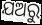
ଯଅରୁ